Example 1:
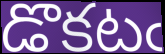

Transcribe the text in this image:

డొకటఁ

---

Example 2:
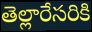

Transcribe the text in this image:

తెల్లారేసరికి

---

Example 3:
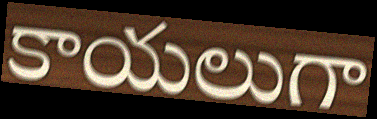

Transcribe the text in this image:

కాయలుగా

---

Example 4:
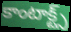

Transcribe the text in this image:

కాంటాక్ట్స్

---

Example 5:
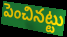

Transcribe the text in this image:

పెంచినట్టు